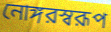
নোঙ্গরস্বরূপ